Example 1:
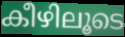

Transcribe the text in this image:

കീഴിലൂടെ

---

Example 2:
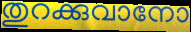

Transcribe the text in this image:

തുറക്കുവാനോ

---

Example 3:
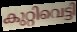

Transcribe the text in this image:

കുറ്റിവെട്ടി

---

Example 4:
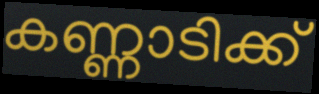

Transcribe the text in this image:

കണ്ണാടിക്ക്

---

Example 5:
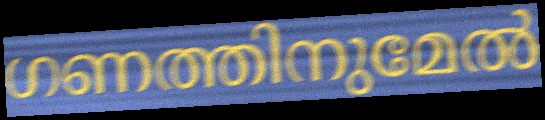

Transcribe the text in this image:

ഗണത്തിനുമേൽ